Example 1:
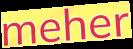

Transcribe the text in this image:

meher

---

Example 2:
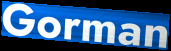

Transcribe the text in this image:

Gorman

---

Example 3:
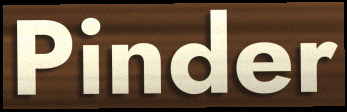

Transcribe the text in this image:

Pinder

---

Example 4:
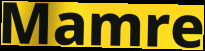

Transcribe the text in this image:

Mamre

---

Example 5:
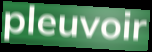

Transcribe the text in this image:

pleuvoir